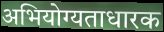
अभियोग्यताधारक